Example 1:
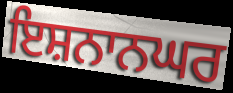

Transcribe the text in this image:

ਇਸ਼ਨਾਨਘਰ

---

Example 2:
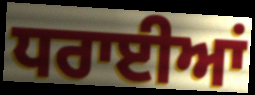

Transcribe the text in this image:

ਧਰਾਈਆਂ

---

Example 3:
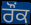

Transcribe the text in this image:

ਰੌਂਕ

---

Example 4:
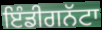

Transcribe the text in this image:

ਇੰਡੀਗਨੱਟਾ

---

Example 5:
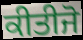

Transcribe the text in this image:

ਕੀਤੀਜੋ